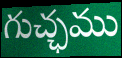
గుచ్ఛము